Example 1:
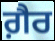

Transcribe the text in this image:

ਗ਼ੈਰ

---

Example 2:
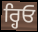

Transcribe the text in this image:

ਰ੍ਹਿਓ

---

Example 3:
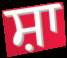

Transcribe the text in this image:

ਸ਼ਾ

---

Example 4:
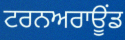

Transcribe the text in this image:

ਟਰਨਅਰਾਊਂਡ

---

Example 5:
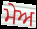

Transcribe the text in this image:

ਮੇਅ